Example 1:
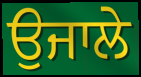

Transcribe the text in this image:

ਉਜਾਲੇ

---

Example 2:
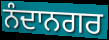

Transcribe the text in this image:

ਨੰਦਾਨਗਰ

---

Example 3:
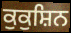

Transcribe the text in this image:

ਕੁਕੁਸ਼ਿਨ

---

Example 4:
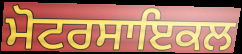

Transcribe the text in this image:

ਮੋਟਰਸਾਇਕਲ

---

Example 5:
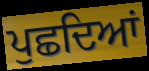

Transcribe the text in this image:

ਪੁਛਦਿਆਂ